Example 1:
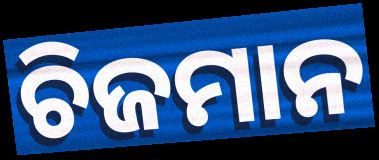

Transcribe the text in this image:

ଚିଜମାନ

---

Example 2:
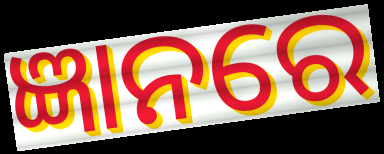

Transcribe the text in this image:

ଜ୍ଞାନରେ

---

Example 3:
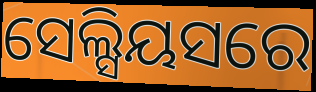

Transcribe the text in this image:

ସେଲ୍ସିୟସରେ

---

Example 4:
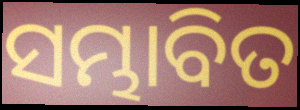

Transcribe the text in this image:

ସମ୍ଭାବିତ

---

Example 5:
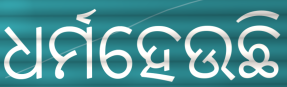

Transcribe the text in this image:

ଧର୍ମହେଉଛି